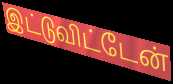
இட்டுவிட்டேன்